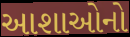
આશાઓનો